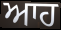
ਆਹ